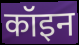
कॉइन